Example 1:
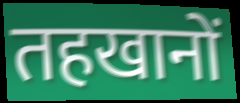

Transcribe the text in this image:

तहखानों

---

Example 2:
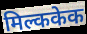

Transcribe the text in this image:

मिल्ककेक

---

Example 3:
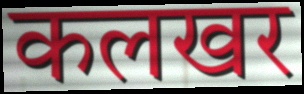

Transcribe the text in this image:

कलखर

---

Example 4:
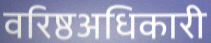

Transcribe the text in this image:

वरिष्ठअधिकारी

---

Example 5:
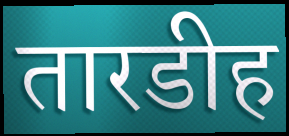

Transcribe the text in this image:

तारडीह